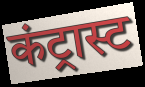
कंट्रास्ट